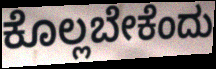
ಕೊಲ್ಲಬೇಕೆಂದು